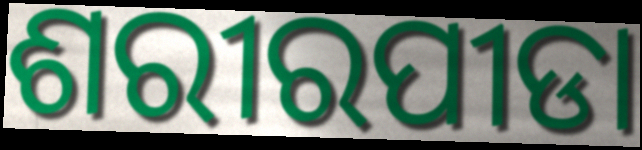
ଶରୀରପୀଡା